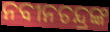
ନବୀନଚନ୍ଦ୍ରଙ୍କ